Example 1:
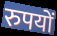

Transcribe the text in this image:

रुपयों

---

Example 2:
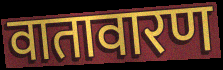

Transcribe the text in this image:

वातावारण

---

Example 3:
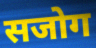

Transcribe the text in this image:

सजोग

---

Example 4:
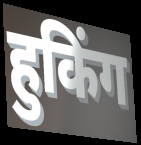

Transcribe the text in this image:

हुकिंग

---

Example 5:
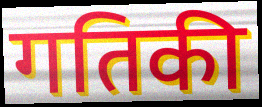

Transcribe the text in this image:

गतिकी